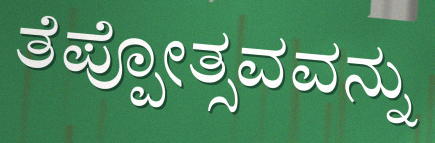
ತೆಪ್ಪೋತ್ಸವವನ್ನು